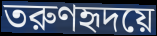
তরুণহৃদয়ে